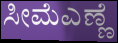
ಸೀಮೆಎಣ್ಣೆ